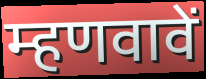
म्हणवावें